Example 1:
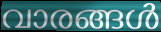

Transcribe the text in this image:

വാരങ്ങൾ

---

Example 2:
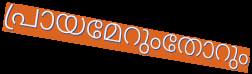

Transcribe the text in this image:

പ്രായമേറുംതോറും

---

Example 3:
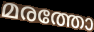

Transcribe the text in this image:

മരത്തോ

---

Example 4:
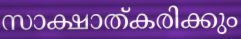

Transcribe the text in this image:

സാക്ഷാത്കരിക്കും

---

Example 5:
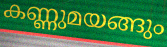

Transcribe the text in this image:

കണ്ണുമയങ്ങും